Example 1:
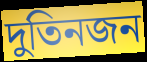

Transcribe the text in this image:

দুতিনজন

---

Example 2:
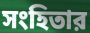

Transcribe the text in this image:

সংহিতার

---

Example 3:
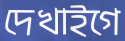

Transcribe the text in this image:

দেখাইগে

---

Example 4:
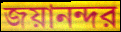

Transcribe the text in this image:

জয়ানন্দর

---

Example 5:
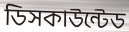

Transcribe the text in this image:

ডিসকাউন্টেড